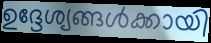
ഉദ്ദേശ്യങ്ങൾക്കായി